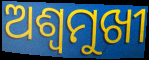
ଅଶ୍ୱମୁଖୀ